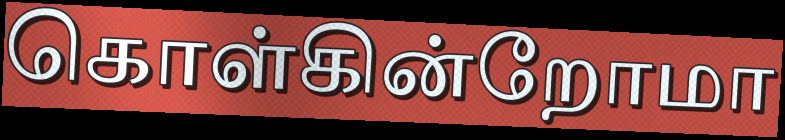
கொள்கின்றோமா